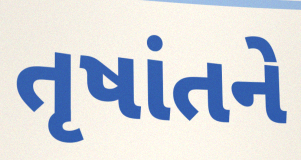
તૃષાંતને